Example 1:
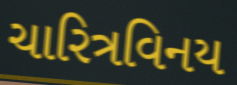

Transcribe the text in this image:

ચારિત્રવિનય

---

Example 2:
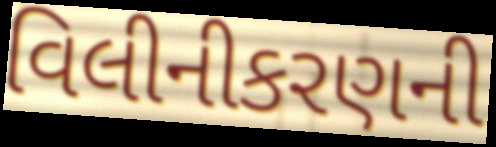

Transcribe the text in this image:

વિલીનીકરણની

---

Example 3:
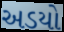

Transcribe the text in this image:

અડયો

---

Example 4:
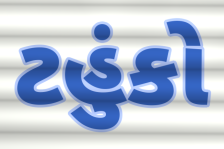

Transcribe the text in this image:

ટહુંકો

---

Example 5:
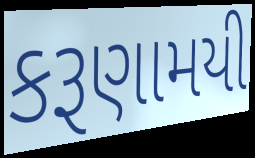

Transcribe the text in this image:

કરૂણામયી